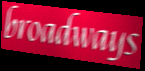
broadways